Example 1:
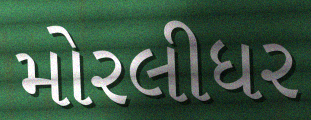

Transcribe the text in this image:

મોરલીધર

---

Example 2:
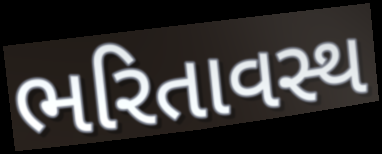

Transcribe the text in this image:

ભરિતાવસ્થ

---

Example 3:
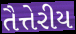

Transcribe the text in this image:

તૈત્તેરીય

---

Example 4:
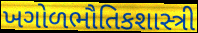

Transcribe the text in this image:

ખગોળભૌતિકશાસ્ત્રી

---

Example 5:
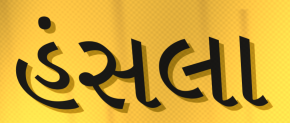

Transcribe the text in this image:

હંસલા